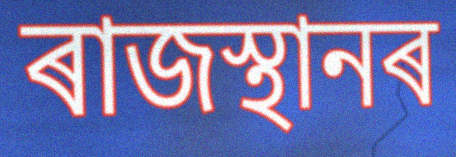
ৰাজস্থানৰ